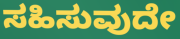
ಸಹಿಸುವುದೇ